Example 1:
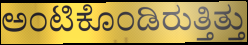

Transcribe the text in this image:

ಅಂಟಿಕೊಂಡಿರುತ್ತಿತ್ತು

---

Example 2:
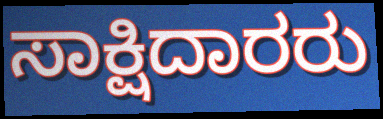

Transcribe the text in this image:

ಸಾಕ್ಷಿದಾರರು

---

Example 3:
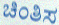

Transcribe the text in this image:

ಚಿಂತಿಸ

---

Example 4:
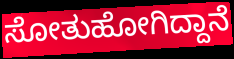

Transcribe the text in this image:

ಸೋತುಹೋಗಿದ್ದಾನೆ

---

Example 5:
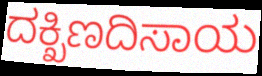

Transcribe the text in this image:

ದಕ್ಖಿಣದಿಸಾಯ